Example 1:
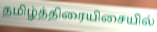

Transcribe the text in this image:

தமிழ்த்திரையிசையில்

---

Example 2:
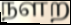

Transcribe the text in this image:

நளற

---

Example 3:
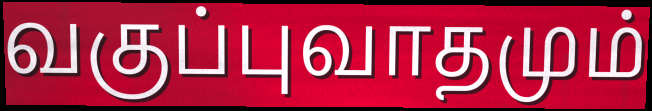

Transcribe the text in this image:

வகுப்புவாதமும்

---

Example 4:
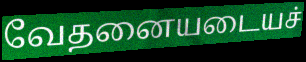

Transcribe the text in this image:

வேதனையடையச்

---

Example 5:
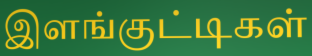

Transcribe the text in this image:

இளங்குட்டிகள்